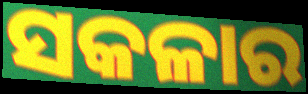
ସକଳାର